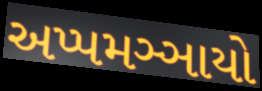
અપ્પમઞ્ઞાયો